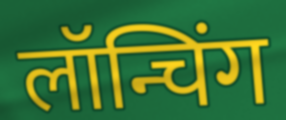
लॉन्चिंग